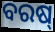
ବରଷ୍